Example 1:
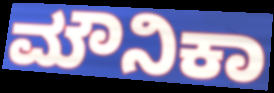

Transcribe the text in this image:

ಮೌನಿಕಾ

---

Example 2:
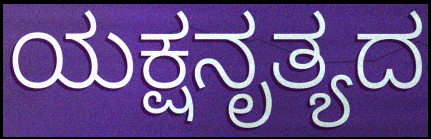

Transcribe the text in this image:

ಯಕ್ಷನೃತ್ಯದ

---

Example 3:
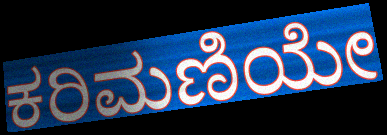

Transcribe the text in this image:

ಕರಿಮಣಿಯೇ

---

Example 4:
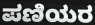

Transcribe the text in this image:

ಪಣಿಯರ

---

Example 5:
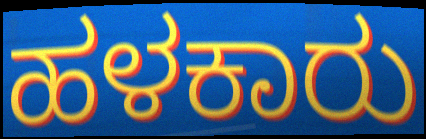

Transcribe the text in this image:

ಹಳಕಾರು